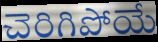
చెరిగిపోయే